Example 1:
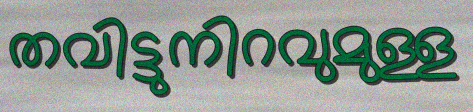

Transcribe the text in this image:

തവിട്ടുനിറവുമുള്ള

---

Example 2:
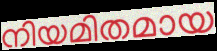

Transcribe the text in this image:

നിയമിതമായ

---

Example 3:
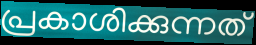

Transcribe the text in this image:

പ്രകാശിക്കുന്നത്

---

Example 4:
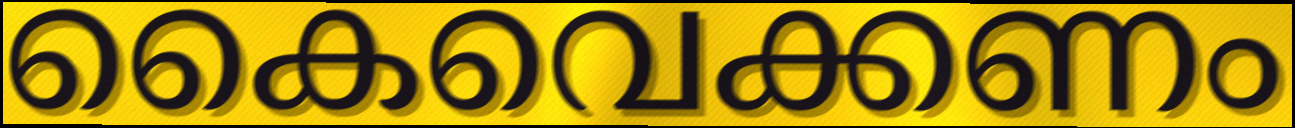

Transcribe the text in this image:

കൈവെക്കണം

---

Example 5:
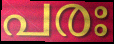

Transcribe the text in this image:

പരഃ